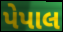
પેપાલ